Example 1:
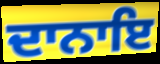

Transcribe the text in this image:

ਦਾਨਾਇ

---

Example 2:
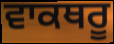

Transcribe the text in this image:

ਵਾਕਥਰੂ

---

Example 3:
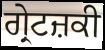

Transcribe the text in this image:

ਗ੍ਰੇਟਜ਼ਕੀ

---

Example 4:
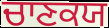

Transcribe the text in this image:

ਚਾਣਕਯ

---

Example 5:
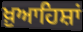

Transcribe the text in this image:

ਖ਼ੁਆਹਿਸ਼ਾਂ